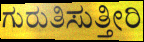
ಗುರುತಿಸುತ್ತೀರಿ